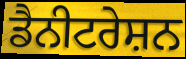
ਡੈਨੀਟਰੇਸ਼ਨ